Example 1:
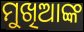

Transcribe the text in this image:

ମୁଖିଆଙ୍କ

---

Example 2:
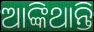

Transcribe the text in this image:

ଆଙ୍କିଥାନ୍ତି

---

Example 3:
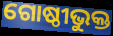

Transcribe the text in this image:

ଗୋଷ୍ଠୀଭୁକ୍ତ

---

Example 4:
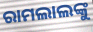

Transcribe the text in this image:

ରାମଲାଲଙ୍କୁ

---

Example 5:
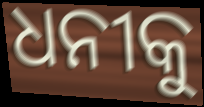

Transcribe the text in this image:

ଧନୀକୁ